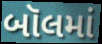
બૉલમાં